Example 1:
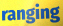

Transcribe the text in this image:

ranging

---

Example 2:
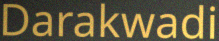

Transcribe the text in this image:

Darakwadi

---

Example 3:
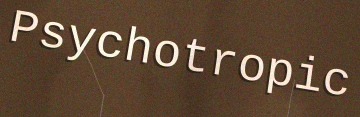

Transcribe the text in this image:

Psychotropic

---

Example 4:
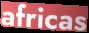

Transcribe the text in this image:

africas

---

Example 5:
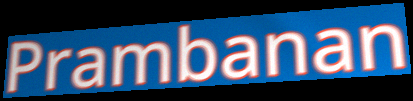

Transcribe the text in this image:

Prambanan